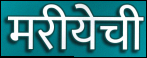
मरीयेची